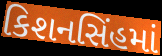
કિશનસિંહમાં